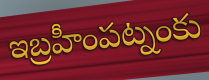
ఇబ్రహీంపట్నంకు